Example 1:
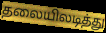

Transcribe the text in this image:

தலையிலடித்து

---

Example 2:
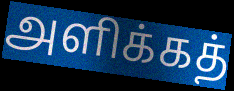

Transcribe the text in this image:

அளிக்கத்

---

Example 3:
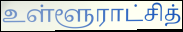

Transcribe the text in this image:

உள்ளூராட்சித்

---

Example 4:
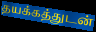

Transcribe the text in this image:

தயக்கத்துடன்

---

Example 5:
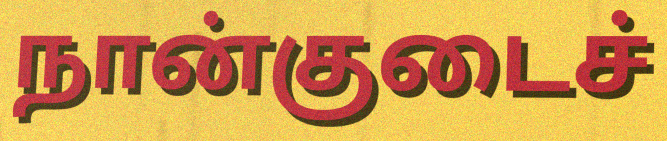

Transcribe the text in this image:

நான்குடைச்